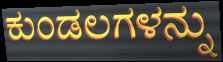
ಕುಂಡಲಗಳನ್ನು